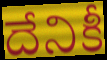
దేనికీ